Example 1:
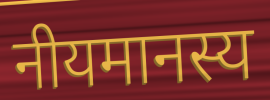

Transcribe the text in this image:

नीयमानस्य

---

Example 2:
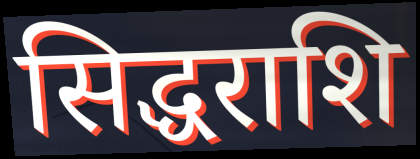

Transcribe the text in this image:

सिद्धराशि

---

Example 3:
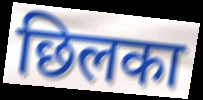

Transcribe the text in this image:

छिलका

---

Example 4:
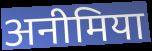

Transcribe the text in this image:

अनीमिया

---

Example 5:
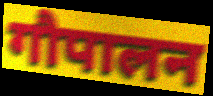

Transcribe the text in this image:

गौपालन